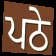
ਪਠੇ